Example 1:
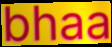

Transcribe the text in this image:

bhaa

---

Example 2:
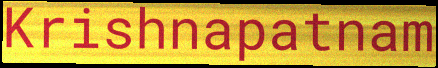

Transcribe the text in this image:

Krishnapatnam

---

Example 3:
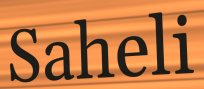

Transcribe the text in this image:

Saheli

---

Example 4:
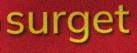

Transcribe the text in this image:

surget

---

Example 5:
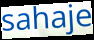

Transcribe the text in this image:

sahaje